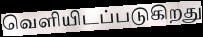
வெளியிடப்படுகிறது